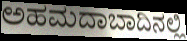
ಅಹಮದಾಬಾದಿನಲ್ಲಿ